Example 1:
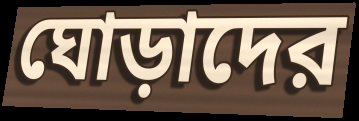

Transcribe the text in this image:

ঘোড়াদের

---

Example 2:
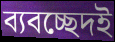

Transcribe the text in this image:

ব্যবচ্ছেদই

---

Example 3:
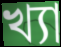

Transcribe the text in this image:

খ্যা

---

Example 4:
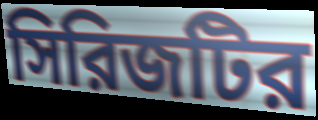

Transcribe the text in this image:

সিরিজটির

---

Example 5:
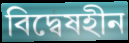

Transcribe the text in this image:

বিদ্বেষহীন